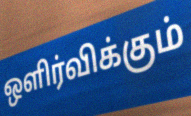
ஒளிர்விக்கும்